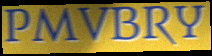
PMVBRY